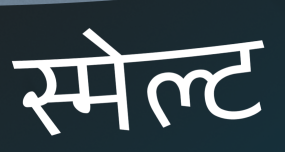
स्मेल्ट